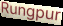
Rungpur